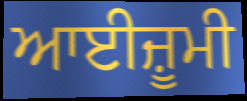
ਆਈਜ਼ੂਮੀ